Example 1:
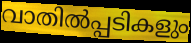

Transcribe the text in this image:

വാതിൽപ്പടികളും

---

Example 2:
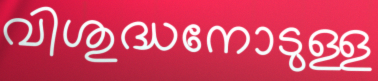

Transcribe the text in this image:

വിശുദ്ധനോടുള്ള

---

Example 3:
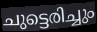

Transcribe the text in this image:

ചുട്ടെരിച്ചും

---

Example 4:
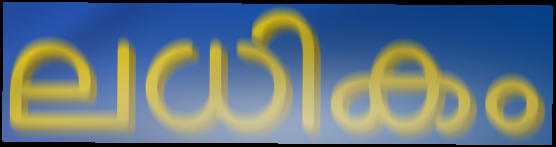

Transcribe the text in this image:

ലധികം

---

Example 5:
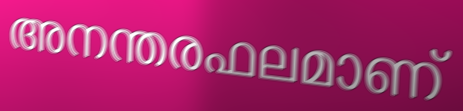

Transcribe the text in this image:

അനന്തരഫലമാണ്